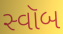
સ્વૉબ